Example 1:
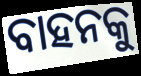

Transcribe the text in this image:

ବାହନକୁ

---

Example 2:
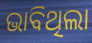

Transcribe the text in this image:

ଭାବିଥିଲା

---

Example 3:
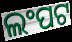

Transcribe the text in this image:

ଲଂପଟ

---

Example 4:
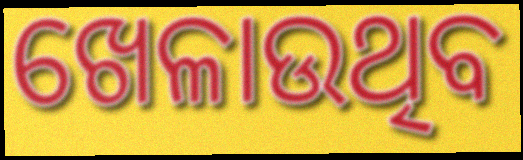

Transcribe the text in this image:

ଖେଳାଉଥିବ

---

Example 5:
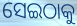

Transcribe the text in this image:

ସେଇଠାକୁ